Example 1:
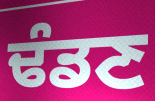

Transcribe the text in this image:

ਢੰਡਣ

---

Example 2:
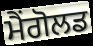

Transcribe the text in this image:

ਮੈਂਗੋਲਡ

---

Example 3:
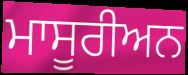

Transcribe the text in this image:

ਮਾਸੂਰੀਅਨ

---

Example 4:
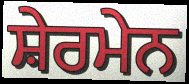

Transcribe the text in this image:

ਸ਼ੇਰਮੇਨ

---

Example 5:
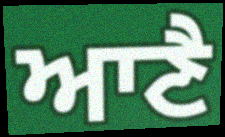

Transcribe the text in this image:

ਆਣੈ